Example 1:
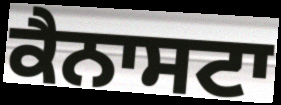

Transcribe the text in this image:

ਕੈਨਾਸਟਾ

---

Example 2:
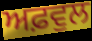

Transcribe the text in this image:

ਅਫ਼ਵੁਲ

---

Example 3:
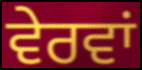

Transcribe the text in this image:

ਵੇਰਵਾਂ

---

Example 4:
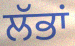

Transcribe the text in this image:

ਲੱਭਾਂ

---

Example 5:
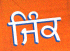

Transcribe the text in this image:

ਜਿੰਕ